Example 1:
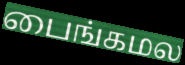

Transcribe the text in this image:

பைங்கமல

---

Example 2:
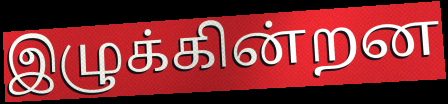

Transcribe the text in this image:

இழுக்கின்றன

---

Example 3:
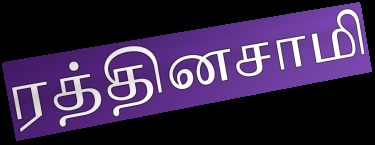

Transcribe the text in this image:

ரத்தினசாமி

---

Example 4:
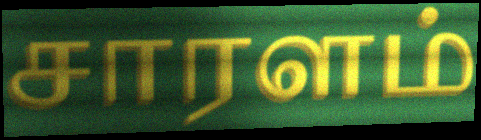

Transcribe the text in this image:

சாரளம்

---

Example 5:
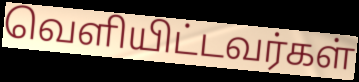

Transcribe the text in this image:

வெளியிட்டவர்கள்